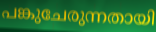
പങ്കുചേരുന്നതായി